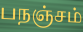
பநஞ்சம்